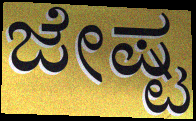
ಜೇಷ್ಟ